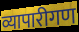
व्यापारीगण